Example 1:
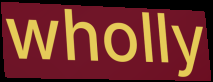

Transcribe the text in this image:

wholly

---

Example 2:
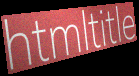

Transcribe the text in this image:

htmltitle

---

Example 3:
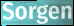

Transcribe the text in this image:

Sorgen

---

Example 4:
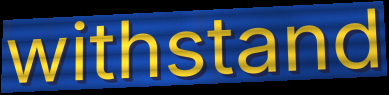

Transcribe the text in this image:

withstand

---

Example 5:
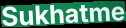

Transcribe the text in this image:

Sukhatme